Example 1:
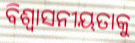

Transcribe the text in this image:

ବିଶ୍ୱାସନୀୟତାକୁ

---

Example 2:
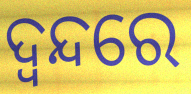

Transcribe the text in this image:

ଦ୍ୱନ୍ଦରେ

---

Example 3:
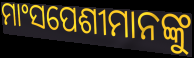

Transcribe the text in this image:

ମାଂସପେଶୀମାନଙ୍କୁ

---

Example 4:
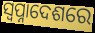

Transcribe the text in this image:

ସ୍ଵପ୍ନାଦେଶରେ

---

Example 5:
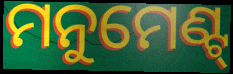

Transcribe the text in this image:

ମନୁମେଣ୍ଟ୍